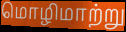
மொழிமாற்று